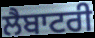
ਲੈਬਾਟਰੀ